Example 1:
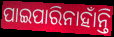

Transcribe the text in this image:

ପାଇପାରିନାହାଁନ୍ତି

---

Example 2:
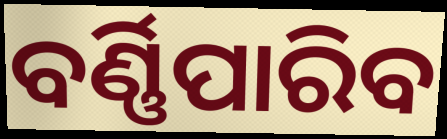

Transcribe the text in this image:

ବର୍ଣ୍ଣିପାରିବ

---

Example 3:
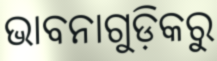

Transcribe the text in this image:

ଭାବନାଗୁଡ଼ିକରୁ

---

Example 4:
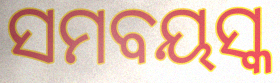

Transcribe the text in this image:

ସମବୟସ୍କ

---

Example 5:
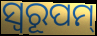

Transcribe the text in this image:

ସ୍ଵରୂପମ୍